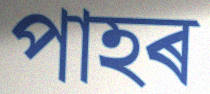
পাহৰ